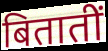
बितातीं